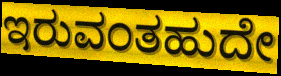
ಇರುವಂತಹುದೇ